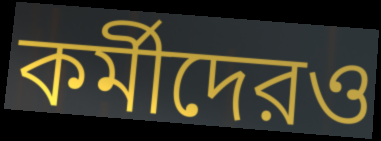
কর্মীদেরও